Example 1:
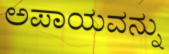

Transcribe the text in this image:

ಅಪಾಯವನ್ನು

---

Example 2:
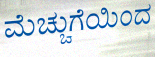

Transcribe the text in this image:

ಮೆಚ್ಚುಗೆಯಿಂದ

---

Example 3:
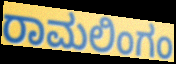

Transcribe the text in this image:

ರಾಮಲಿಂಗಂ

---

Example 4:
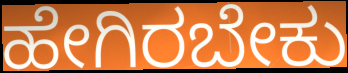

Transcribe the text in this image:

ಹೇಗಿರಬೇಕು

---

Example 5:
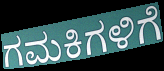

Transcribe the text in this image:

ಗಮಕಿಗಳಿಗೆ